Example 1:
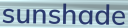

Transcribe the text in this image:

sunshade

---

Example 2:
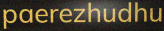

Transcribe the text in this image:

paerezhudhu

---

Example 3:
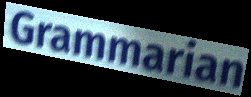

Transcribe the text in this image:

Grammarian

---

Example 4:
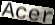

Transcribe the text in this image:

Acer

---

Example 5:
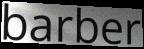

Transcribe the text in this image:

barber